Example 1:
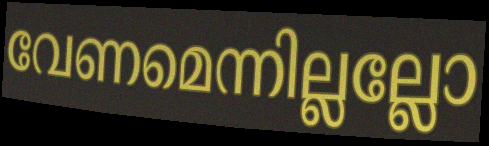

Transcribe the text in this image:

വേണമെന്നില്ലല്ലോ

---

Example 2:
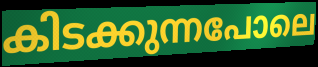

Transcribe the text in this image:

കിടക്കുന്നപോലെ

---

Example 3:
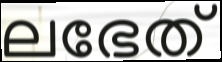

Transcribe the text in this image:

ലഭേത്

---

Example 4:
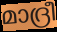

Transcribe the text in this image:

മാദ്രീ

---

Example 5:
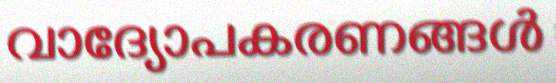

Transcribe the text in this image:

വാദ്യോപകരണങ്ങൾ